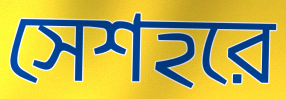
সেশহরে